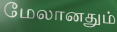
மேலானதும்